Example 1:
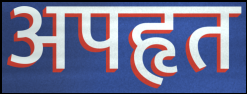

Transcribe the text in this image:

अपहृत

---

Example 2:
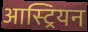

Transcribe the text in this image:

आस्ट्रियन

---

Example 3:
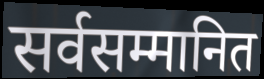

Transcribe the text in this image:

सर्वसम्मानित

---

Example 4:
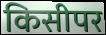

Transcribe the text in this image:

किसीपर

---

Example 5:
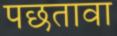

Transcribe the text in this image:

पछतावा